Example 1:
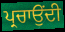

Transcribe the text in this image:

ਪ੍ਰਚਾਉਂਦੀ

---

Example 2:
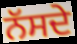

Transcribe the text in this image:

ਨੱਸਦੇ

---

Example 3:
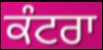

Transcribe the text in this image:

ਕੰਟਰਾ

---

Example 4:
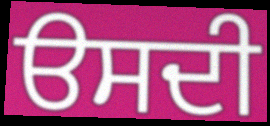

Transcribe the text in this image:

ੳਸਦੀ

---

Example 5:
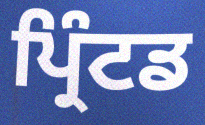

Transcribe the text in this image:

ਪ੍ਰਿੰਟਡ